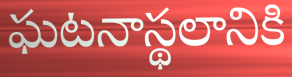
ఘటనాస్థలానికి